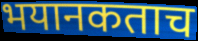
भयानकताच